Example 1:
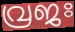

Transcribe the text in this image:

വ്രജഃ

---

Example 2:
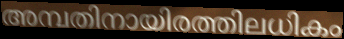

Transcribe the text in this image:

അമ്പതിനായിരത്തിലധികം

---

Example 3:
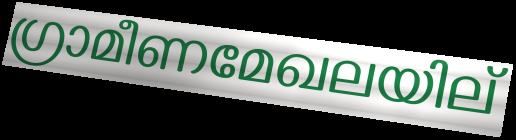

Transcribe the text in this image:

ഗ്രാമീണമേഖലയില്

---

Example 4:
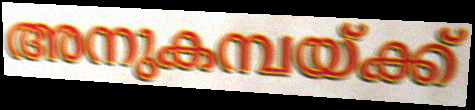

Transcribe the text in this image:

അനുകമ്പയ്ക്ക്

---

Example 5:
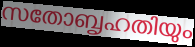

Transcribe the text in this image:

സതോബൃഹതിയും